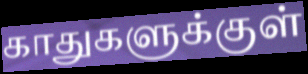
காதுகளுக்குள்